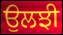
ਉਲਝੀ